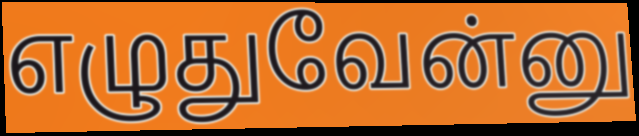
எழுதுவேன்னு